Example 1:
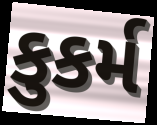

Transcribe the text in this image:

કુકર્મ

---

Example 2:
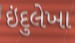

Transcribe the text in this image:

ઇંદુલેખા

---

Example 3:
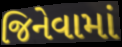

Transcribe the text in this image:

જિનેવામાં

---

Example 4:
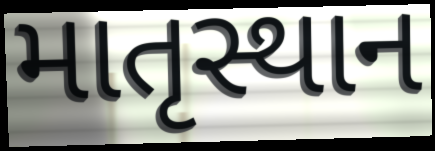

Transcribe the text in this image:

માતૃસ્થાન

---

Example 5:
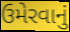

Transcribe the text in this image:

ઉમેરવાનું